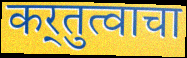
कर्तुत्वाचा